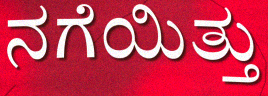
ನಗೆಯಿತ್ತು